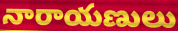
నారాయణులు